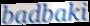
badbaki